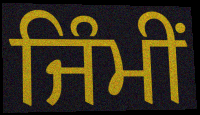
ਜਿੰਮੀਂ